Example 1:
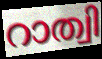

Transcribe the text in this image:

റാത്വി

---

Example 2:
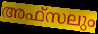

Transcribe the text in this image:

അഫ്സലും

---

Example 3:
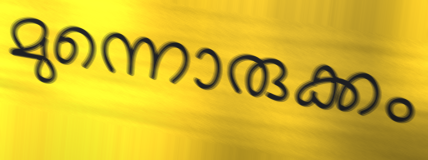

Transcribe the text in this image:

മുന്നൊരുക്കം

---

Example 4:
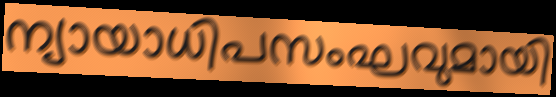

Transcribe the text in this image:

ന്യായാധിപസംഘവുമായി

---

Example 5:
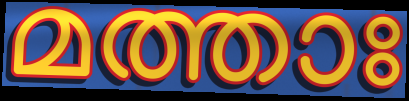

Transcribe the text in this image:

മത്താഃ